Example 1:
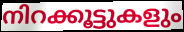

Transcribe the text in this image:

നിറക്കൂട്ടുകളും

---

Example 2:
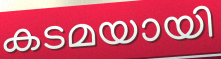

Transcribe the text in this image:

കടമയായി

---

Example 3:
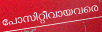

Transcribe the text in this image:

പോസിറ്റീവായവരെ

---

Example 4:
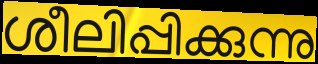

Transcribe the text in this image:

ശീലിപ്പിക്കുന്നു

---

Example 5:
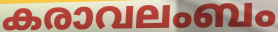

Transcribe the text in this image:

കരാവലംബം